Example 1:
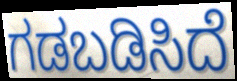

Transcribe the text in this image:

ಗಡಬಡಿಸಿದೆ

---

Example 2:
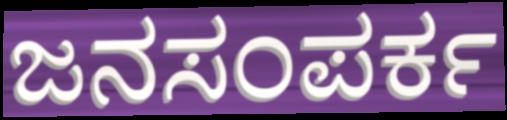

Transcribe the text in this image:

ಜನಸಂಪರ್ಕ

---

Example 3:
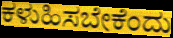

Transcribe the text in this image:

ಕಳುಹಿಸಬೇಕೆಂದು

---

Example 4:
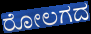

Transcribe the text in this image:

ರೋಲಗದ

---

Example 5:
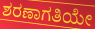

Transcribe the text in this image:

ಶರಣಾಗತಿಯೇ